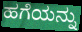
ಹಗೆಯನ್ನು